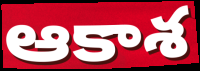
ఆకాశ